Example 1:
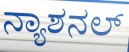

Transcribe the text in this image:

ನ್ಯಾಶನಲ್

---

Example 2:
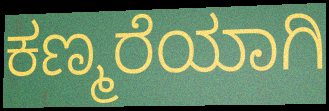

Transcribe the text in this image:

ಕಣ್ಮರೆಯಾಗಿ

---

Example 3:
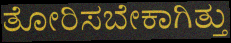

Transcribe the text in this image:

ತೋರಿಸಬೇಕಾಗಿತ್ತು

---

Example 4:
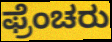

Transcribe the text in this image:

ಫ್ರೆಂಚರು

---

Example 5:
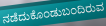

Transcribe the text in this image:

ನಡೆದುಕೊಂಡುಬಂದಿರುವ